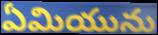
ఏమియును